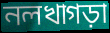
নলখাগড়া